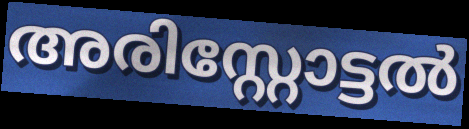
അരിസ്റ്റോട്ടൽ